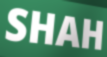
SHAH